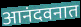
आनंदवनात